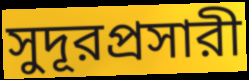
সুদূরপ্রসারী